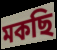
মকছি